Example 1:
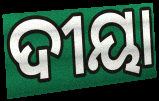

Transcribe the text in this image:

ଦୀୟା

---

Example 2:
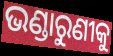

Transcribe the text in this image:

ଭଣ୍ଡାରୁଣୀକୁ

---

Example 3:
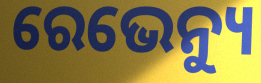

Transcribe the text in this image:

ରେଭେନ୍ୟୁ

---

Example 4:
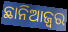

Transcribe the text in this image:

ଛାନିଆଜ୍ୱର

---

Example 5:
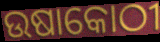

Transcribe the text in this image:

ଉଷାକୋଠୀ